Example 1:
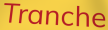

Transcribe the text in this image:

Tranche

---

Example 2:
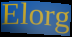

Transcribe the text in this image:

Elorg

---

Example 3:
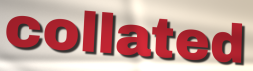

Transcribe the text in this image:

collated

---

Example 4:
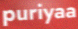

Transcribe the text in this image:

puriyaa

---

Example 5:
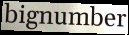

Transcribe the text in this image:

bignumber